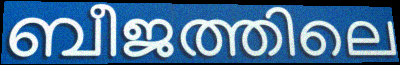
ബീജത്തിലെ